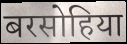
बरसोहिया